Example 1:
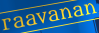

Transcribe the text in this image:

raavanan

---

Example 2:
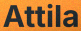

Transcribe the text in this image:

Attila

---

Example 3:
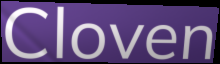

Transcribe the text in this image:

Cloven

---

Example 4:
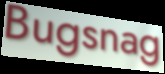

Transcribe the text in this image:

Bugsnag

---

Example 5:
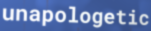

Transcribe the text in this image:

unapologetic